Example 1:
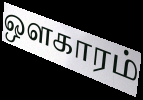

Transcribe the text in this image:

ஔகாரம்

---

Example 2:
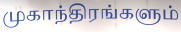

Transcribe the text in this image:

முகாந்திரங்களும்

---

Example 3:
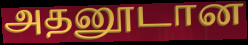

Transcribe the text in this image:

அதனூடான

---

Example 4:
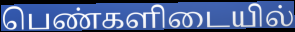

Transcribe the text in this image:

பெண்களிடையில்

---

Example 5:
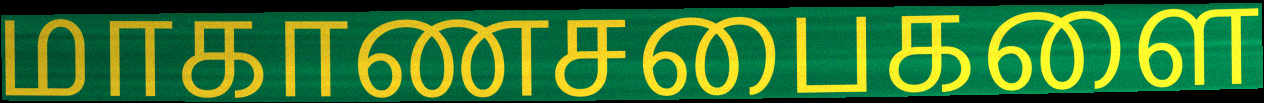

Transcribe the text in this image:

மாகாணசபைகளை